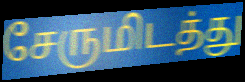
சேருமிடத்து